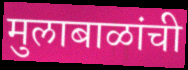
मुलाबाळांची